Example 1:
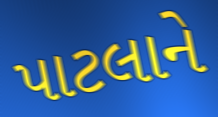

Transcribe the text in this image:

પાટલાને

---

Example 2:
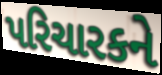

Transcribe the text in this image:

પરિચારકને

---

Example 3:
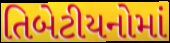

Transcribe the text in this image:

તિબેટીયનોમાં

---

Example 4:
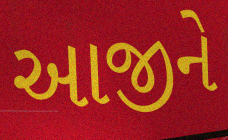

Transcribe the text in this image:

આજીને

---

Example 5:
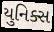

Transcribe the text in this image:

યુનિક્સ